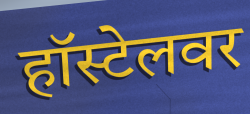
हॉस्टेलवर